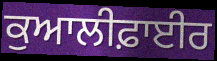
ਕੁਆਲੀਫ਼ਾਈਰ